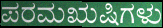
ಪರಮಋಷಿಗಳು